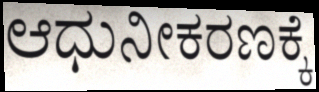
ಆಧುನೀಕರಣಕ್ಕೆ